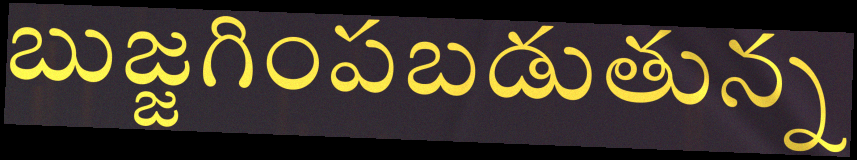
బుజ్జగింపబడుతున్న